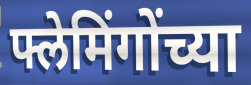
फ्लेमिंगोंच्या